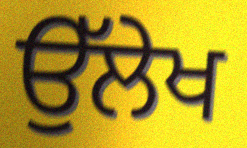
ਉੱਲੇਖ